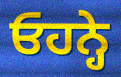
ਓਹਨ੍ਹੇ